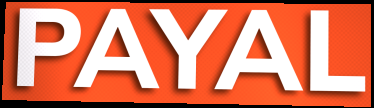
PAYAL